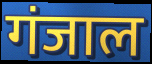
गंजाल